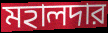
মহালদার